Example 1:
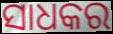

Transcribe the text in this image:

ସାଧକର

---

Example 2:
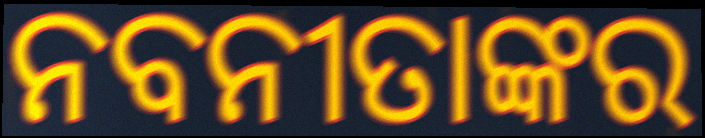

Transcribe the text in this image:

ନବନୀତାଙ୍କର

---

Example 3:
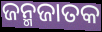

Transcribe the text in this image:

ଜନ୍ମଜାତକ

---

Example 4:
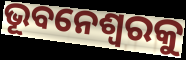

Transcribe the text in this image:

ଭୂବନେଶ୍ୱରକୁ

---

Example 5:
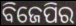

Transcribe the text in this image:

ବିଜେପିର